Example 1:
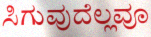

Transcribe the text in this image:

ಸಿಗುವುದೆಲ್ಲವೂ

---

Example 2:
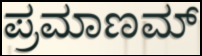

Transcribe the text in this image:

ಪ್ರಮಾಣಮ್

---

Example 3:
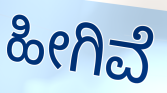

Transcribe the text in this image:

ಹೀಗಿವೆ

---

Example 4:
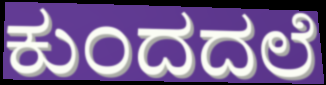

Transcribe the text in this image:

ಕುಂದದಲೆ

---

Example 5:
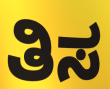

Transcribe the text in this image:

ತಿಸ